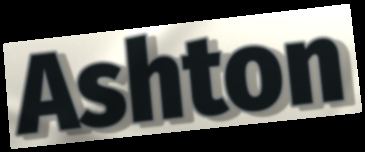
Ashton